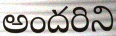
అందరిని